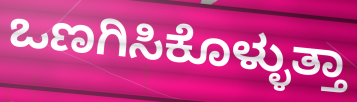
ಒಣಗಿಸಿಕೊಳ್ಳುತ್ತಾ